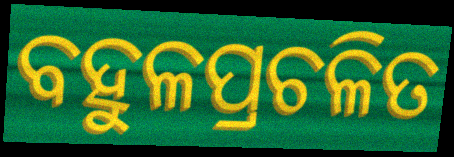
ବହୁଳପ୍ରଚଳିତ